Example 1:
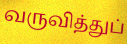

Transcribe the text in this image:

வருவித்துப்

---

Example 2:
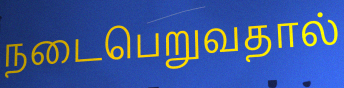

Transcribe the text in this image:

நடைபெறுவதால்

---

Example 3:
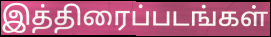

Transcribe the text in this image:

இத்திரைப்படங்கள்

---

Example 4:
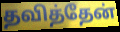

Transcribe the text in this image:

தவித்தேன்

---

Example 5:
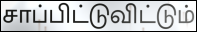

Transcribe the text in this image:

சாப்பிட்டுவிட்டும்